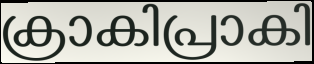
ക്രാകിപ്രാകി